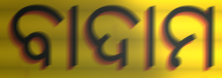
ବାଦାମ